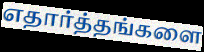
எதார்த்தங்களை